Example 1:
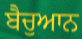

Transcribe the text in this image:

ਬੈਚੁਆਨ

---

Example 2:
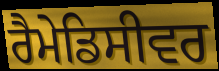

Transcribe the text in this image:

ਰੈਮੇਡਿਸੀਵਰ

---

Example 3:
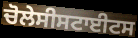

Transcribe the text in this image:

ਚੋਲੇਸੀਸਟਾਈਟਸ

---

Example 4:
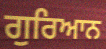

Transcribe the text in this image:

ਗੁਰਿਆਨ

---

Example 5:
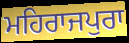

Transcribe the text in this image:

ਮਹਿਰਾਜਪੁਰਾ